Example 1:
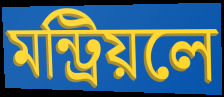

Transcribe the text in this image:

মন্ট্রিয়লে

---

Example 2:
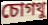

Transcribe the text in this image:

চোগথু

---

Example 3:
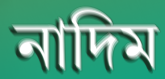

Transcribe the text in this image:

নাদিম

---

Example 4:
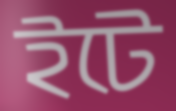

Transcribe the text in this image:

ইটে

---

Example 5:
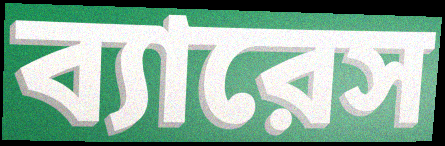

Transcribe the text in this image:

ব্যারেস